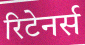
रिटेनर्स